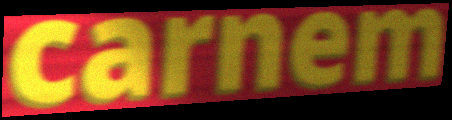
carnem